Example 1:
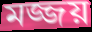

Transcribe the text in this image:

মজ্জয়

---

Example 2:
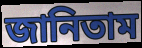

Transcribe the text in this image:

জানিতাম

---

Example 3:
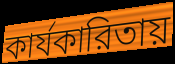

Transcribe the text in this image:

কার্যকারিতায়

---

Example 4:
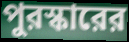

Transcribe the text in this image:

পুরস্কারের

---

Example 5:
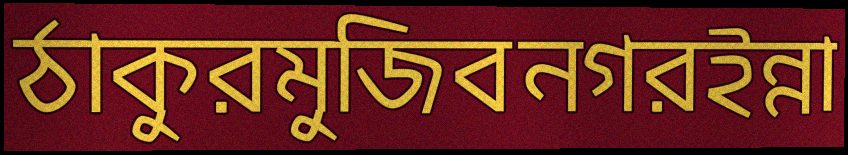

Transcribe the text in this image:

ঠাকুরমুজিবনগরইন্না